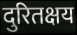
दुरितक्षय